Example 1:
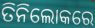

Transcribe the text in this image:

ତିନିଲୋକରେ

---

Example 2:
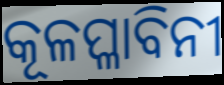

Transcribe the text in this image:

କୂଳପ୍ଳାବିନୀ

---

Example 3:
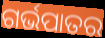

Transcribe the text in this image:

ଗର୍ଭପାତର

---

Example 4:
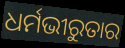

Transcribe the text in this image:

ଧର୍ମଭୀରୁତାର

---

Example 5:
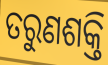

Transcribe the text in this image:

ତରୁଣଶକ୍ତି